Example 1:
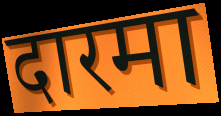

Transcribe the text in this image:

दारमा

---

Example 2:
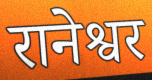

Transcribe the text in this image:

रानेश्वर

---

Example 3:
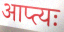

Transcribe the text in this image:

आप्त्यः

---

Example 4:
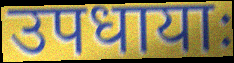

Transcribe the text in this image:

उपधायाः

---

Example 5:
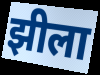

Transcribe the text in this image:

झीला